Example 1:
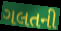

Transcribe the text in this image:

ગલતની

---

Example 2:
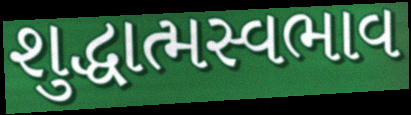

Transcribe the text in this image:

શુદ્ધાત્મસ્વભાવ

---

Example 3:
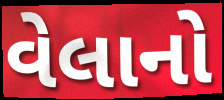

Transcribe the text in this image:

વેલાનો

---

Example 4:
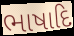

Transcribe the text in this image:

ભાષાદિ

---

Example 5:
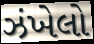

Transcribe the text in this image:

ઝંખેલો